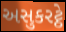
અસુકરટ્ઠે